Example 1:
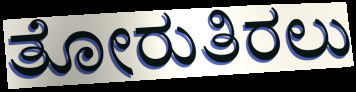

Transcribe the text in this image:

ತೋರುತಿರಲು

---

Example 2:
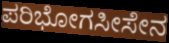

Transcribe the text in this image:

ಪರಿಭೋಗಸೀಸೇನ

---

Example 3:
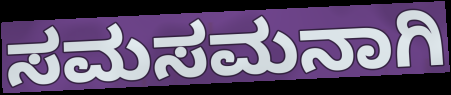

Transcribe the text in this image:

ಸಮಸಮನಾಗಿ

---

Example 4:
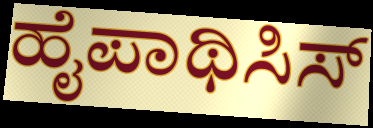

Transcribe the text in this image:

ಹೈಪಾಥಿಸಿಸ್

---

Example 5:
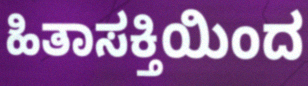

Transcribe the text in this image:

ಹಿತಾಸಕ್ತಿಯಿಂದ